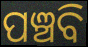
ପଞ୍ଚବି